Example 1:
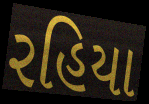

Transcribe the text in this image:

રહિયા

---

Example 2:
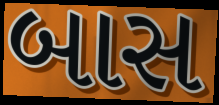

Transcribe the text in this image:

બાસ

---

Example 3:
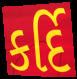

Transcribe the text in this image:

કર્દિ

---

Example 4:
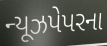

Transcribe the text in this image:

ન્યૂઝપેપરના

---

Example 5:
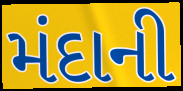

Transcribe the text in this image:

મંદાની